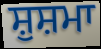
ਸ਼ੁਸ਼ਮਾ